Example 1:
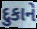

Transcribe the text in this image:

દુકાને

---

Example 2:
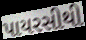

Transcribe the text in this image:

પાયરસીથી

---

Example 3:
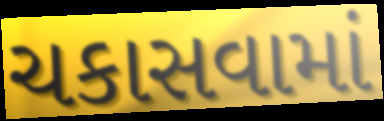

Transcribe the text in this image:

ચકાસવામાં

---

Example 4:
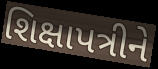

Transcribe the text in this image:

શિક્ષાપત્રીને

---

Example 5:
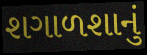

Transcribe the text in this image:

શગાળશાનું